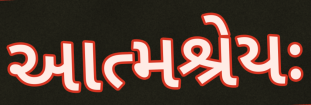
આત્મશ્રેયઃ